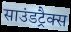
साउंडट्रैक्स